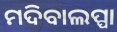
ମଦିବାଲପ୍ପା